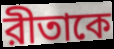
রীতাকে